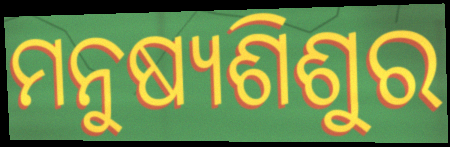
ମନୁଷ୍ୟଶିଶୁର